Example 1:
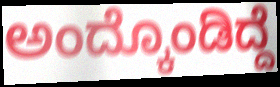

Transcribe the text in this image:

ಅಂದ್ಕೊಂಡಿದ್ದೆ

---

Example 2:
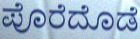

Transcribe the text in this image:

ಪೊರೆದೊಡೆ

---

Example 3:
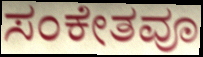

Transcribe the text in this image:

ಸಂಕೇತವೂ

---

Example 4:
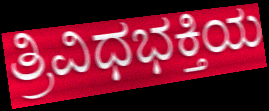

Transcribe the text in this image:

ತ್ರಿವಿಧಭಕ್ತಿಯ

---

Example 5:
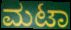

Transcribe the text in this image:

ಮಟಾ